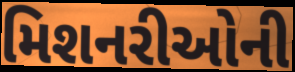
મિશનરીઓની